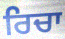
ਰਿਚਾ